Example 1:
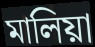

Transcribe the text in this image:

মালিয়া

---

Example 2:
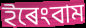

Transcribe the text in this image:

ইৰেংবাম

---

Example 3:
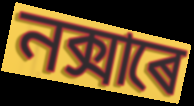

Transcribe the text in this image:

নক্সাৰে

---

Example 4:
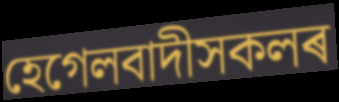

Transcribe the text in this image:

হেগেলবাদীসকলৰ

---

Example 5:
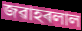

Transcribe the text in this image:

জৱাহৰলাল